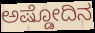
ಅಷ್ಡೋದಿನ